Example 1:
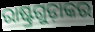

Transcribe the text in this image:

ରାଷ୍ଟ୍ରଗୁଡ଼ାକର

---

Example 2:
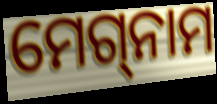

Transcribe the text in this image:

ମେଗ୍‌ନାମ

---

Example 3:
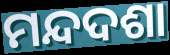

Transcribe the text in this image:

ମନ୍ଦଦଶା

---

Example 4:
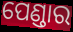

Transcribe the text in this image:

ପେଣ୍ଡାର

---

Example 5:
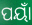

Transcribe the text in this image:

ପୟାଁ